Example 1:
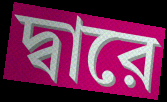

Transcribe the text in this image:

দ্বারে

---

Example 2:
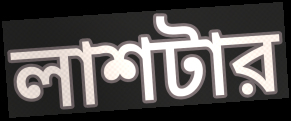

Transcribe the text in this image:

লাশটার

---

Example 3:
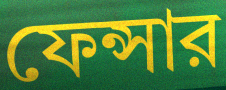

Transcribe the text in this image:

ফেন্সার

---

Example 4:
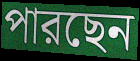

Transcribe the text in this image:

পারছেন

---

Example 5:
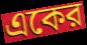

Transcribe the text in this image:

একের